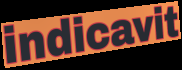
indicavit